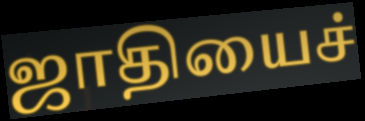
ஜாதியைச்